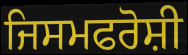
ਜਿਸਮਫਰੋਸ਼ੀ